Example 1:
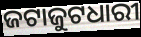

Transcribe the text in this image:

ଜଟାଜୁଟଧାରୀ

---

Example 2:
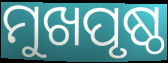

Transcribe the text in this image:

ମୁଖପୃଷ୍ଠ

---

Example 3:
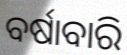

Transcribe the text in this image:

ବର୍ଷାବାରି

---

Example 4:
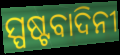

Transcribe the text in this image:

ସ୍ପଷ୍ଟବାଦିନୀ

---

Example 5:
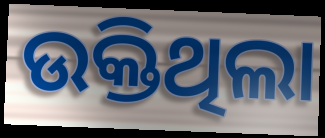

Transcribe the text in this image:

ଉକ୍ତିଥିଲା